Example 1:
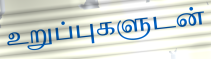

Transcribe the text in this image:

உறுப்புகளுடன்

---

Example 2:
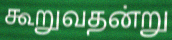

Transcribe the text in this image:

கூறுவதன்று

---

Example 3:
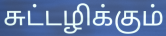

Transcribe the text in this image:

சுட்டழிக்கும்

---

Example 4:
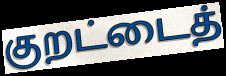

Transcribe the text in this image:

குறட்டைத்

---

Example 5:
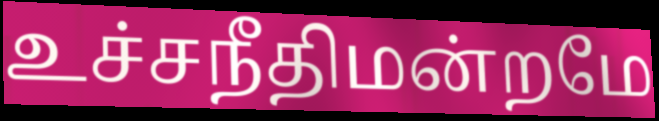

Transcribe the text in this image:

உச்சநீதிமன்றமே